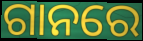
ଗାନରେ